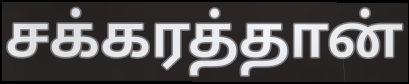
சக்கரத்தான்